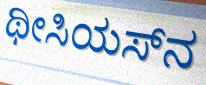
ಥೀಸಿಯಸ್‌ನ